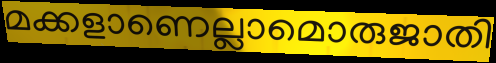
മക്കളാണെല്ലാമൊരുജാതി